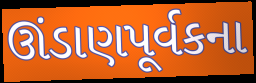
ઊંડાણપૂર્વકના